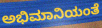
ಅಭಿಮಾನಿಯಂತೆ